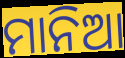
ମାନିଆ